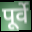
पूर्वे